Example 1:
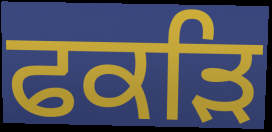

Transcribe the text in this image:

ਫਕੜਿ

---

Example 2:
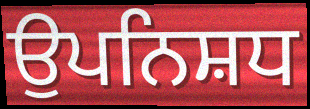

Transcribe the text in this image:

ਉਪਨਿਸ਼ਧ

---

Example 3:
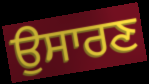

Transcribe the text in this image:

ਉਸਾਰਣ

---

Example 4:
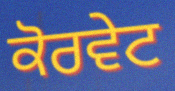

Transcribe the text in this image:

ਕੋਰਵੇਟ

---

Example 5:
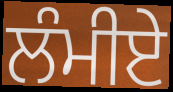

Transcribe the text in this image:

ਲੰਮੀਏ